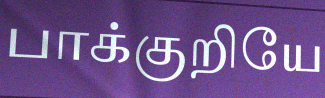
பாக்குறியே